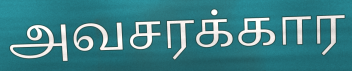
அவசரக்கார